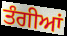
ਤੰਗੀਆਂ